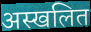
अस्खलित